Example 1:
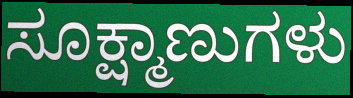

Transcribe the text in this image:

ಸೂಕ್ಷ್ಮಾಣುಗಳು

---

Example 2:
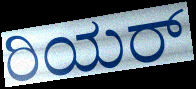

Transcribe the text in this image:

ರಿಯರ್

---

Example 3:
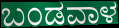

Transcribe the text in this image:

ಬಂಡವಾಳ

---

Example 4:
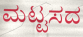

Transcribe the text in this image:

ಮಟ್ಟಸದ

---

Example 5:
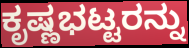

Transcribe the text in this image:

ಕೃಷ್ಣಭಟ್ಟರನ್ನು